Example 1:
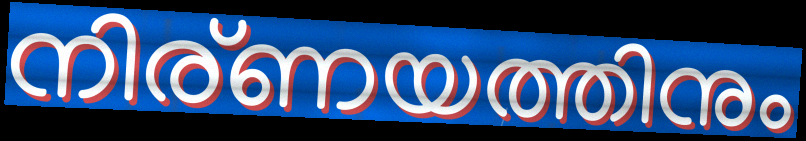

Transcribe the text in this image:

നിര്ണയത്തിനും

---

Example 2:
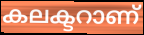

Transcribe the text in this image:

കലക്ടറാണ്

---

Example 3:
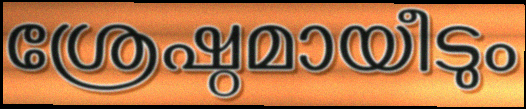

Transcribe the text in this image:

ശ്രേഷ്ഠമായീടും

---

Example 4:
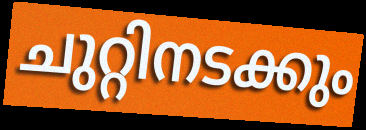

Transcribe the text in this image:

ചുറ്റിനടക്കും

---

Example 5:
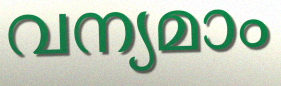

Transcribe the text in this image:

വന്യമാം